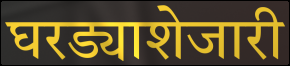
घरड्याशेजारी